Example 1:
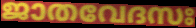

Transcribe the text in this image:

ജാതവേദസഃ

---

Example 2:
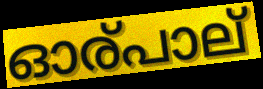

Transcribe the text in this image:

ഓര്പാല്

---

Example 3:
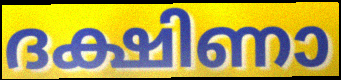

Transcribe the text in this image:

ദക്ഷിണാ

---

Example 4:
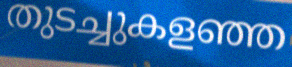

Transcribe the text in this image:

തുടച്ചുകളഞ്ഞ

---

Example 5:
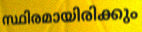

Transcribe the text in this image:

സ്ഥിരമായിരിക്കും